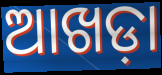
ଆଖଡ଼ା